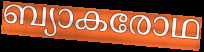
ബ്യാകരോഥ